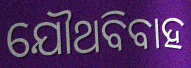
ଯୌଥବିବାହ